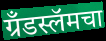
ग्रँडस्लॅमचा